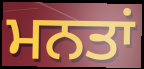
ਮਨਤਾਂ